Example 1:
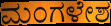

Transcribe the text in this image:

ಮಂಗಳೇಶ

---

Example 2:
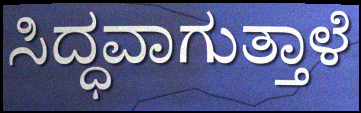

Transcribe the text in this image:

ಸಿದ್ಧವಾಗುತ್ತಾಳೆ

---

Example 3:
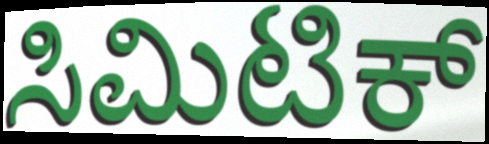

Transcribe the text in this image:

ಸಿಮಿಟಿಕ್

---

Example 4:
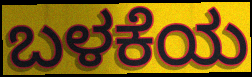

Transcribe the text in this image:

ಬಳಕೆಯ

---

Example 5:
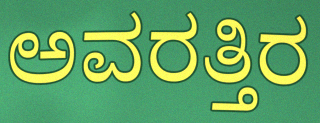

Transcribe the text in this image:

ಅವರತ್ತಿರ